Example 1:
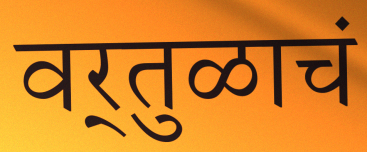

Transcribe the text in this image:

वर्तुळाचं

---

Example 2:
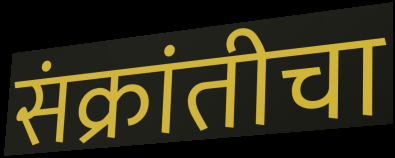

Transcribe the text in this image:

संक्रांतीचा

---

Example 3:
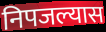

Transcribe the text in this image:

निपजल्यास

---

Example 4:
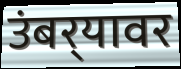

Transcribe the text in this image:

उंबर्‍यावर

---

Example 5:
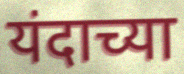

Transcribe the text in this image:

यंदाच्या